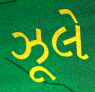
ઝૂલે